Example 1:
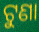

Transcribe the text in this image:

ଟୁଣା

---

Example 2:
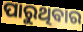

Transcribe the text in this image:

ପାରୁଥିବାର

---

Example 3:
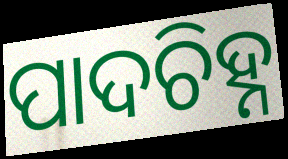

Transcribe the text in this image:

ପାଦଚିହ୍ନ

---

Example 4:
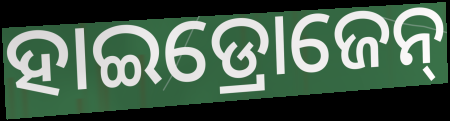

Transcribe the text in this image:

ହାଇଡ୍ରୋଜେନ୍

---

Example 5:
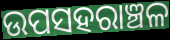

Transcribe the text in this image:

ଉପସହରାଞ୍ଚଳ